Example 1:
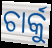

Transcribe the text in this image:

ଚାର୍କୁ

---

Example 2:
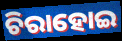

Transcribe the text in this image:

ଚିରାହୋଇ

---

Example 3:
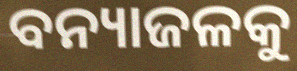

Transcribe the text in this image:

ବନ୍ୟାଜଳକୁ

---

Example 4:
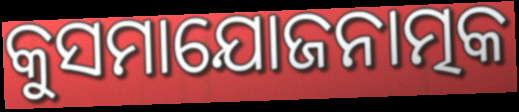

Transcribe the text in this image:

କୁସମାଯୋଜନାତ୍ମକ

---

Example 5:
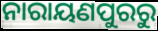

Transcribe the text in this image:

ନାରାୟଣପୁରରୁ